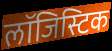
लॉजिस्टिक